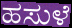
ಹಸುಳೆ